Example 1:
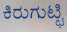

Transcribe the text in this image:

ಕಿರುಗುಟ್ಟಿ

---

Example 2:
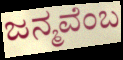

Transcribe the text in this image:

ಜನ್ಮವೆಂಬ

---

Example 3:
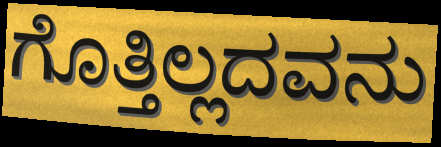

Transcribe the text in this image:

ಗೊತ್ತಿಲ್ಲದವನು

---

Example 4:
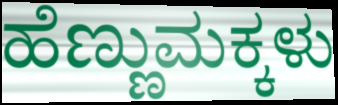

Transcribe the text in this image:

ಹೆಣ್ಣುಮಕ್ಕಳು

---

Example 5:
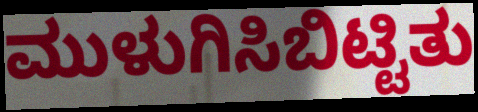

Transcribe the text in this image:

ಮುಳುಗಿಸಿಬಿಟ್ಟಿತು